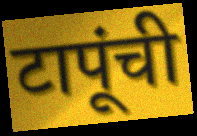
टापूंची